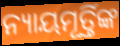
ନ୍ୟାୟମୂର୍ତ୍ତିଙ୍କ